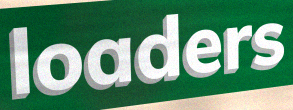
loaders